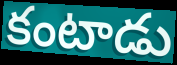
కంటాడు